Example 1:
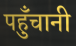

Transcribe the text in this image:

पहुँचानी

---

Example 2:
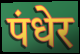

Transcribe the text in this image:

पंधेर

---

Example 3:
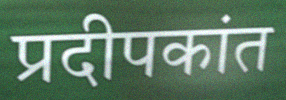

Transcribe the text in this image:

प्रदीपकांत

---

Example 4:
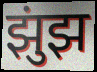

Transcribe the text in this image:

झुंझ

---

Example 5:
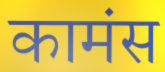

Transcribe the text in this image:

कामंस